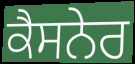
ਕੈਸਨੇਰ